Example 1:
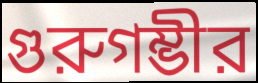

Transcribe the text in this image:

গুরুগম্ভীর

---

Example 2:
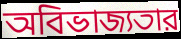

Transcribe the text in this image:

অবিভাজ্যতার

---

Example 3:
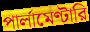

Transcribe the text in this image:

পার্লামেণ্টারি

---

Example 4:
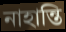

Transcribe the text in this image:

নাহান্তি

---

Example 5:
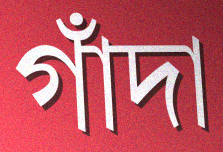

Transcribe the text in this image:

গাঁদা